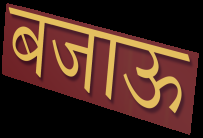
बजाऊ